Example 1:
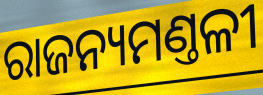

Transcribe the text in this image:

ରାଜନ୍ୟମଣ୍ତଳୀ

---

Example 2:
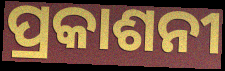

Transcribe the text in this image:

ପ୍ରକାଶନୀ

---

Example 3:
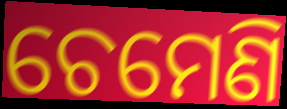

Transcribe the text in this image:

ଚେମେଣି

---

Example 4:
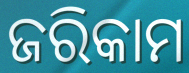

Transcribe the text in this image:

ଜରିକାମ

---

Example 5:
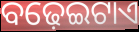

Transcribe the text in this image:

ବଢ଼େଇଟାଏ